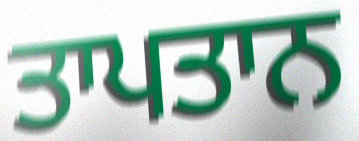
ਤਾਪਤਾਨ